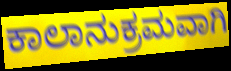
ಕಾಲಾನುಕ್ರಮವಾಗಿ